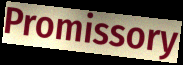
Promissory